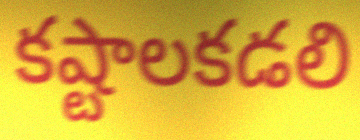
కష్టాలకడలి